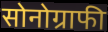
सोनोग्राफी